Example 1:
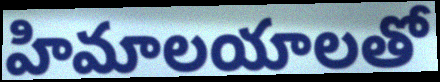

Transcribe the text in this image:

హిమాలయాలతో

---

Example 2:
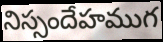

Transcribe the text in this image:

నిస్సందేహముగ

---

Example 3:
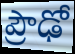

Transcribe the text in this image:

ప్రౌఢో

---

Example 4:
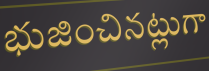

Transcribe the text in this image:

భుజించినట్లుగా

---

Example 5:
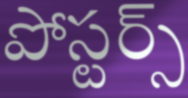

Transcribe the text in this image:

పోస్టర్స్